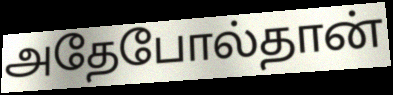
அதேபோல்தான்